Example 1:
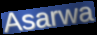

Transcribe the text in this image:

Asarwa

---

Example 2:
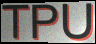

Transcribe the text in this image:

TPU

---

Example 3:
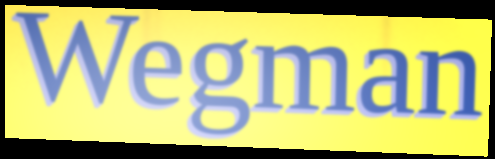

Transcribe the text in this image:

Wegman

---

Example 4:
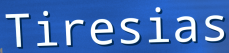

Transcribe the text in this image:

Tiresias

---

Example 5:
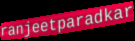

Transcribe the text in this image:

ranjeetparadkar